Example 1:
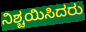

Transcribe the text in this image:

ನಿಶ್ಚಯಿಸಿದರು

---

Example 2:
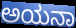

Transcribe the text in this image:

ಅಯನಾ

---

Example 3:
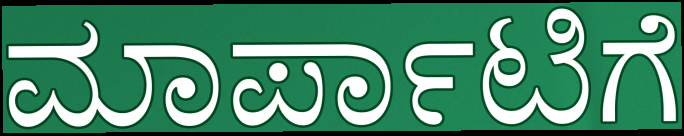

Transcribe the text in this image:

ಮಾರ್ಪಾಟಿಗೆ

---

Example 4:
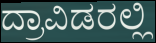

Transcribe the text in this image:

ದ್ರಾವಿಡರಲ್ಲಿ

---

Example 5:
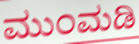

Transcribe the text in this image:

ಮುಂಮಡಿ